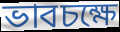
ভাবচক্ষে